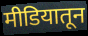
मीडियातून